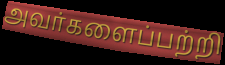
அவர்களைப்பற்றி